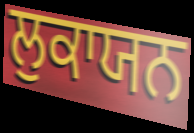
ਲੁਕਾਯਨ